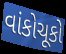
વાંકોચૂકો